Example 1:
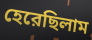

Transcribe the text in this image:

হেরেছিলাম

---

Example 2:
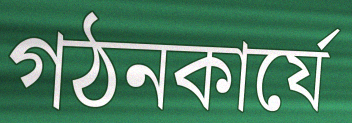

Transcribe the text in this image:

গঠনকার্যে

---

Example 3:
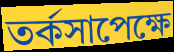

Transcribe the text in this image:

তর্কসাপেক্ষে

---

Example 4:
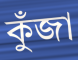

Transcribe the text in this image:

কুঁজা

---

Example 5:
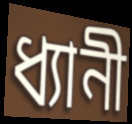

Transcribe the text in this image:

ধ্যানী